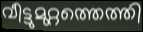
വീട്ടുമുറ്റത്തെത്തി